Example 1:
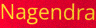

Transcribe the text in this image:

Nagendra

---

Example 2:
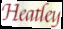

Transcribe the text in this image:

Heatley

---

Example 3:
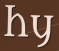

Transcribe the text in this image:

hy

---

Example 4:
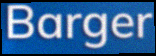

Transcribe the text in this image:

Barger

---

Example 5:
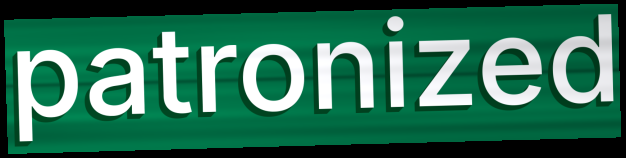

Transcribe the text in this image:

patronized